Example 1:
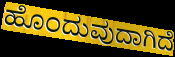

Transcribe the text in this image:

ಹೊಂದುವುದಾಗಿದೆ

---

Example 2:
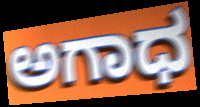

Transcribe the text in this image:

ಅಗಾಧ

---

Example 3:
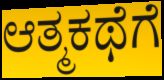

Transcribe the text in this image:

ಆತ್ಮಕಥೆಗೆ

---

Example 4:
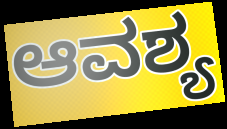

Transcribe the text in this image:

ಆವಶ್ಯ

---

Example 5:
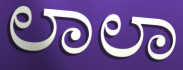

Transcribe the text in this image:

ಲಾಲಾ